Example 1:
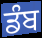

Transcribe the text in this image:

ਡੰਬ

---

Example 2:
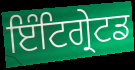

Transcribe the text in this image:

ਇੰਟਿਗ੍ਰੇਟਡ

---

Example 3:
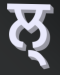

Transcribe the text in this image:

ਲ੍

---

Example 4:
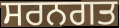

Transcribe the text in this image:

ਸਰਨਗਤ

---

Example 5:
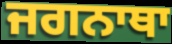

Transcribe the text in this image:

ਜਗਨਾਥਾ